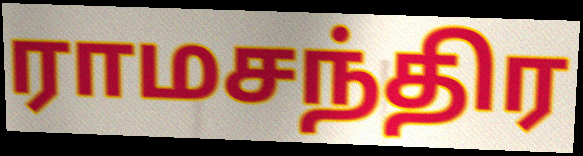
ராமசந்திர